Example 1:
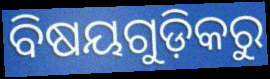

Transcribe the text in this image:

ବିଷୟଗୁଡ଼ିକରୁ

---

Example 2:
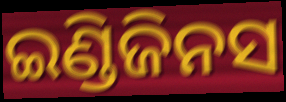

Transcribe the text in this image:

ଇଣ୍ଡିଜିନସ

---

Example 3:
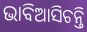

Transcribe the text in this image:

ଭାବିଆସିଚନ୍ତି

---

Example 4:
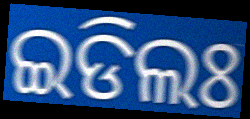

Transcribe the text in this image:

ଇଡିଲଃ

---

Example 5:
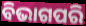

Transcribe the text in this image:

ବିଭାଗପରି